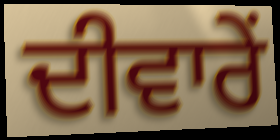
ਦੀਵਾਰੇਂ